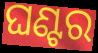
ଘଣ୍ଟର